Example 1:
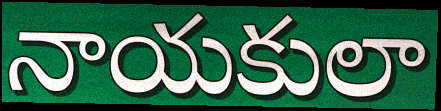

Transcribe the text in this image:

నాయకులా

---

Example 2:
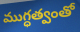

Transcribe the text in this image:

ముగ్ధత్వంతో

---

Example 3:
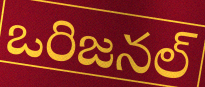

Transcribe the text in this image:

ఒరిజనల్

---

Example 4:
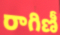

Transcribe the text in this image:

రాగిణీ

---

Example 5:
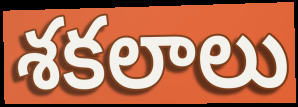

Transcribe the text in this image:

శకలాలు